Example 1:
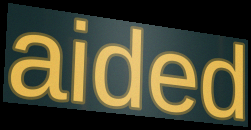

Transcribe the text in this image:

aided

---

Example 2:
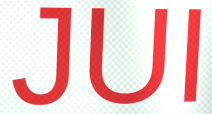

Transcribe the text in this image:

JUI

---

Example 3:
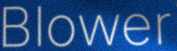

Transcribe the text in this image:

Blower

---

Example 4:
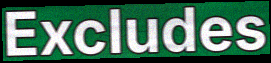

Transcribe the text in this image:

Excludes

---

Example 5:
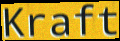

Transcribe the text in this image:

Kraft